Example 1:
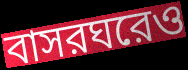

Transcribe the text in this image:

বাসরঘরেও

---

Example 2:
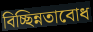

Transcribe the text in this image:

বিচ্ছিন্নতাবোধ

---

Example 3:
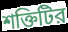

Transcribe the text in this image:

শক্তিটির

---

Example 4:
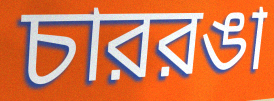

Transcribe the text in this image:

চাররঙা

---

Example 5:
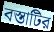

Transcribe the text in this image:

বস্তাটির